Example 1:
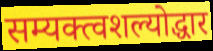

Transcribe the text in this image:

सम्यक्त्वशल्योद्धार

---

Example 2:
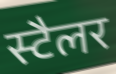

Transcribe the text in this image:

स्टैलर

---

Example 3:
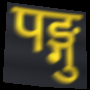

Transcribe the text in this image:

पङ्गु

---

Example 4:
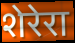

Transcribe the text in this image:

शेरेरा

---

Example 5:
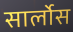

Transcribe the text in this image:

सार्लोस